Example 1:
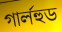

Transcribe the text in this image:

গার্লহুড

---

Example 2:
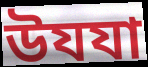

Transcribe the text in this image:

উযযা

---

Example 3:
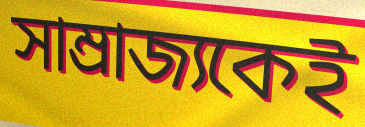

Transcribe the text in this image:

সাম্রাজ্যকেই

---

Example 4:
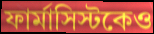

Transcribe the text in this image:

ফার্মাসিস্টকেও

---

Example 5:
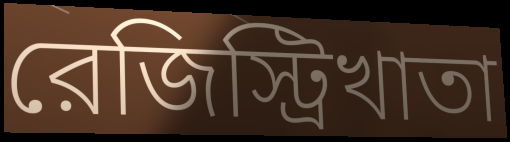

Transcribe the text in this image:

রেজিস্ট্রিখাতা